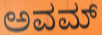
ಅವಮ್